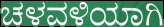
ಚಳವಳಿಯಾಗಿ